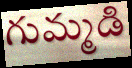
గుమ్మడి